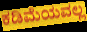
ಕಡಿಮೆಯವಲ್ಲ